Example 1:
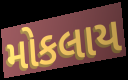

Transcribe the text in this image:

મોકલાય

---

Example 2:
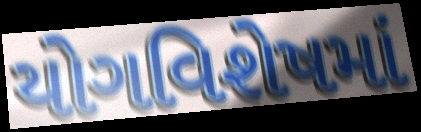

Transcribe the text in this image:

યોગવિશેષમાં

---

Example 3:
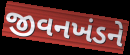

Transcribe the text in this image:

જીવનખંડને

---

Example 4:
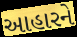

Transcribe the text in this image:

આહારને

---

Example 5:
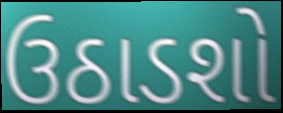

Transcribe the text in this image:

ઉઠાડશો